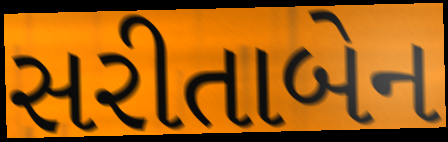
સરીતાબેન